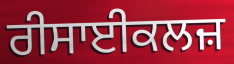
ਰੀਸਾਈਕਲਜ਼